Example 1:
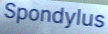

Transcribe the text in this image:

Spondylus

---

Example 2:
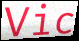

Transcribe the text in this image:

Vic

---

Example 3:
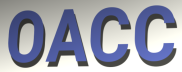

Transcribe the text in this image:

OACC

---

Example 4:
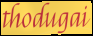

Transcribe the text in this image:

thodugai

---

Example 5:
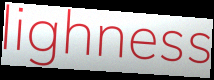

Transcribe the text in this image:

lighness